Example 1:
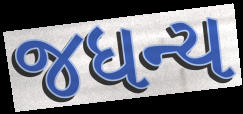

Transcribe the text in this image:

જધન્ય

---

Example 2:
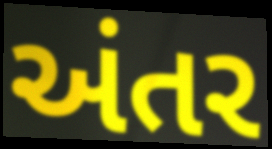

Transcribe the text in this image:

અંતર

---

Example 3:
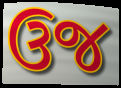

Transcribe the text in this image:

ઉજ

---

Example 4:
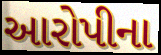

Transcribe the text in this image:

આરોપીના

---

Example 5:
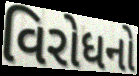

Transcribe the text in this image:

વિરોધનો